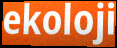
ekoloji